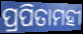
ପ୍ରପିତାମହୀ